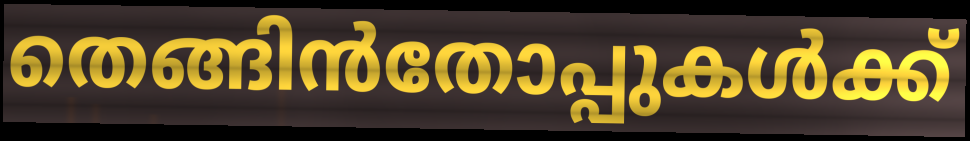
തെങ്ങിൻതോപ്പുകൾക്ക്